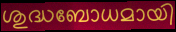
ശുദ്ധബോധമായി